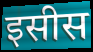
इसीस